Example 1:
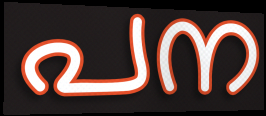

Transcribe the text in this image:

പന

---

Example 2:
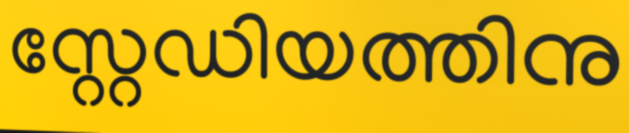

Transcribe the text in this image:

സ്റ്റേഡിയത്തിനു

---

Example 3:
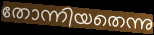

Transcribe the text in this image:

തോന്നിയതെന്നു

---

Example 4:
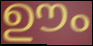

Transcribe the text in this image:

ഊം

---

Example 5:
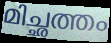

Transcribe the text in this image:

മിച്ഛത്തം